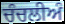
ਚੰਚਲੀਅੰ